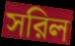
সরিল